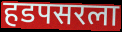
हडपसरला